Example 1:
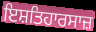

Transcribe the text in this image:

ਇਸ਼ਤਿਹਾਰਸਾਜ਼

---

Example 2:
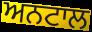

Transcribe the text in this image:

ਅਨਟਾਲ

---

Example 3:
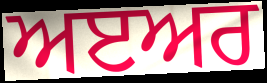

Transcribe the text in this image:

ਅੲਅਰ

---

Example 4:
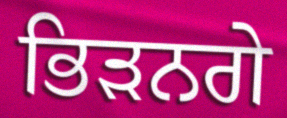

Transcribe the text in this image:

ਭਿੜਨਗੇ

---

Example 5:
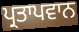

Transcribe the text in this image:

ਪ੍ਰਤਾਪਵਾਨ